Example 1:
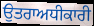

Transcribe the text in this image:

ਉਤਰਾਅਧੀਕਾਰੀ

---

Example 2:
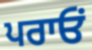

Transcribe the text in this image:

ਪਰਾਓਂ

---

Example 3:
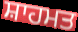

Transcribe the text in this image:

ਸ਼ਾਹਮਤ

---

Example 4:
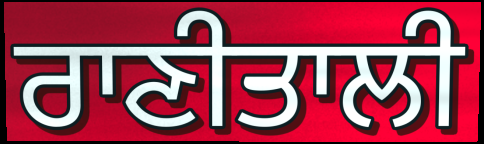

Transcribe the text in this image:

ਰਾਣੀਤਾਲੀ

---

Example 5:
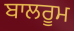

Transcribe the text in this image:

ਬਾਲਰੂਮ